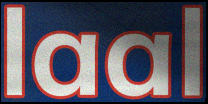
laal